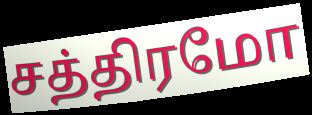
சத்திரமோ